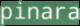
pinara